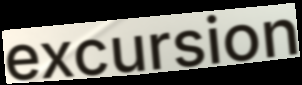
excursion